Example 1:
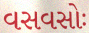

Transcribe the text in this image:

વસવસોઃ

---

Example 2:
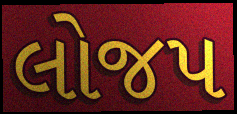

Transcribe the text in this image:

લોજપ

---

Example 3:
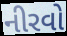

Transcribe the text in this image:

નીરવો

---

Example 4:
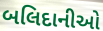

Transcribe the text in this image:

બલિદાનીઓ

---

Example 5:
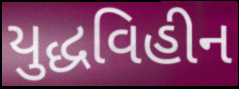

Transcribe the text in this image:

યુદ્ધવિહીન